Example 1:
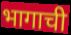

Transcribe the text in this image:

भागाची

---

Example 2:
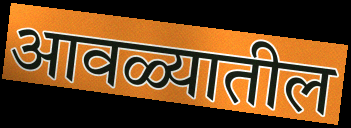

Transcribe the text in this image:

आवळ्यातील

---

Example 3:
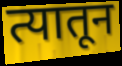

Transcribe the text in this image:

त्यातून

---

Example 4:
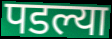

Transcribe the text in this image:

पडल्या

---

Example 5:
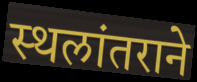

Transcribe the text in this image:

स्थलांतराने